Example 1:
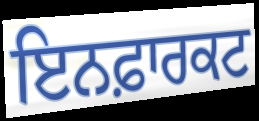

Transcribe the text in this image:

ਇਨਫ਼ਾਰਕਟ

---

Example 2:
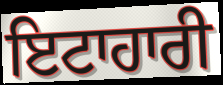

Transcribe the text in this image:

ਇਟਾਹਾਰੀ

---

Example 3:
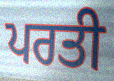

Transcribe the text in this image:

ਪਰਤੀ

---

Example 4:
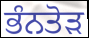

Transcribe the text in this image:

ਭੰਨਤੋੜ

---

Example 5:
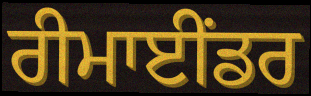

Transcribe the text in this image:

ਰੀਮਾਈਂਡਰ